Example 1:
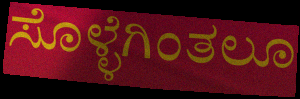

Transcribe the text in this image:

ಸೊಳ್ಳೆಗಿಂತಲೂ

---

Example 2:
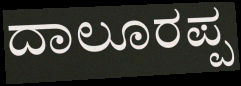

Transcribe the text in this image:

ದಾಲೂರಪ್ಪ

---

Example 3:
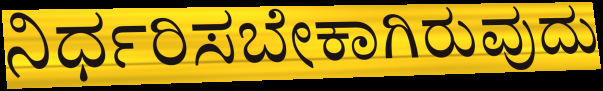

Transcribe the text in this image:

ನಿರ್ಧರಿಸಬೇಕಾಗಿರುವುದು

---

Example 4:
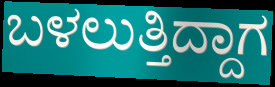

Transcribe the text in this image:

ಬಳಲುತ್ತಿದ್ದಾಗ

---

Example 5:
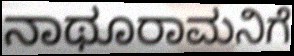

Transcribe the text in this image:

ನಾಥೂರಾಮನಿಗೆ